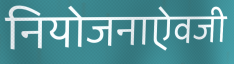
नियोजनाऐवजी